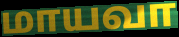
மாயவா